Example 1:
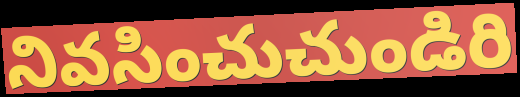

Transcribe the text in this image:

నివసించుచుండిరి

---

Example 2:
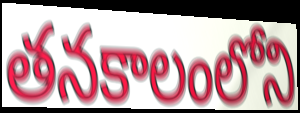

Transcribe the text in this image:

తనకాలంలోని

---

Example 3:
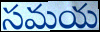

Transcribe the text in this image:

సమయ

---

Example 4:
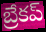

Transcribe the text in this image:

బ్రేకప్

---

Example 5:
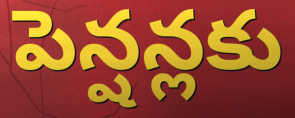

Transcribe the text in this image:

పెన్షన్లకు